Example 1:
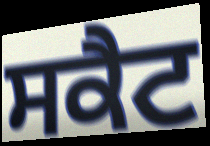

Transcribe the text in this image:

ਸਕੈਟ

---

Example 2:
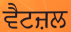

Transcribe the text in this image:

ਵੈਟਜ਼ਲ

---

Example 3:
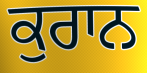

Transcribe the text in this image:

ਕੁਰਾਨ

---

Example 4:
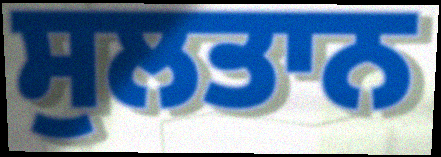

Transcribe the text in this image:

ਸੁਲਤਾਨ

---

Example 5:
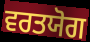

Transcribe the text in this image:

ਵਰਤਯੋਗ